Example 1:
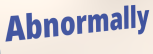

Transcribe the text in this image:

Abnormally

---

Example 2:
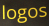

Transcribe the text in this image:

logos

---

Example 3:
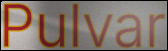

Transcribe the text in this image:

Pulvar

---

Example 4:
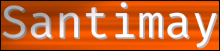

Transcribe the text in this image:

Santimay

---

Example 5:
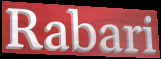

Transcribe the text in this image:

Rabari